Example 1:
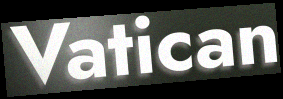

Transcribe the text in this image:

Vatican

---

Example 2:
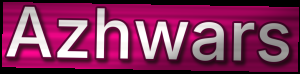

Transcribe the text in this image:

Azhwars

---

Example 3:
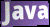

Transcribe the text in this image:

Java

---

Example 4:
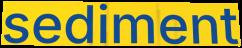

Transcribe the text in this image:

sediment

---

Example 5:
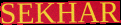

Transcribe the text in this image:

SEKHAR